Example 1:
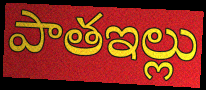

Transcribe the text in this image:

పాతఇల్లు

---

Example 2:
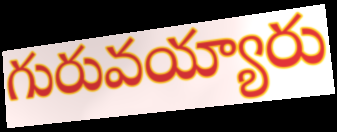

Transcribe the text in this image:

గురువయ్యారు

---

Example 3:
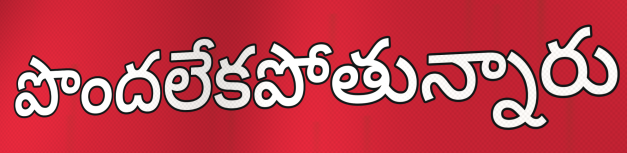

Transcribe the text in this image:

పొందలేకపోతున్నారు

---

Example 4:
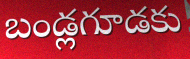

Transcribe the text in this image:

బండ్లగూడకు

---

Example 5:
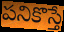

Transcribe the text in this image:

పనికొస్తే